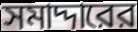
সমাদ্দারের